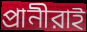
প্রানীরাই